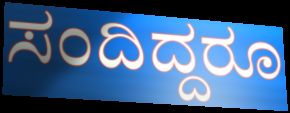
ಸಂದಿದ್ದರೂ